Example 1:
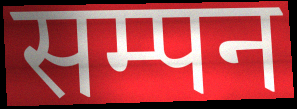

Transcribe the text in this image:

सम्पन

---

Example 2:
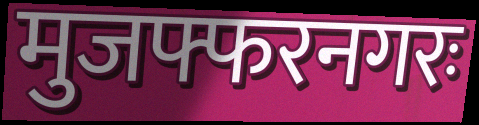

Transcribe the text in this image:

मुजफ्फरनगरः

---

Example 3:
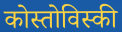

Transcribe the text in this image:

कोस्तोविस्की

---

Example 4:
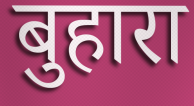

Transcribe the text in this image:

बुहारा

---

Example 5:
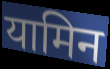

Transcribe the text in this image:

यामिन